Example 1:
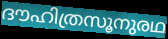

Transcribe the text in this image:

ദൗഹിത്രസൂനുരഥ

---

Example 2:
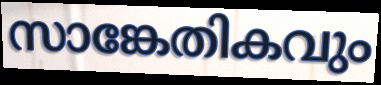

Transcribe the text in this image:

സാങ്കേതികവും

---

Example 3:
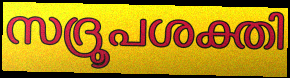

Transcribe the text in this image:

സദ്രൂപശക്തി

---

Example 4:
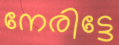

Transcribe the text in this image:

നേരിട്ടേ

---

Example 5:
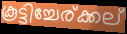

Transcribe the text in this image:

കൂട്ടിച്ചേര്ക്കല്